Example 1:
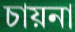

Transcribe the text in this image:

চায়না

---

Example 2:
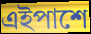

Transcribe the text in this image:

এইপাশে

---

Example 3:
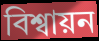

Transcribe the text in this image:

বিশ্বায়ন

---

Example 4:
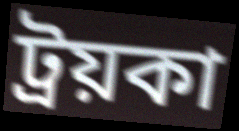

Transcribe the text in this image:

ট্রয়কা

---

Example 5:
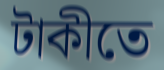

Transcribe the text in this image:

টাকীতে